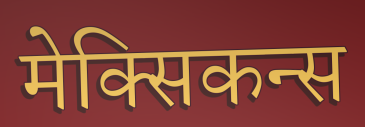
मेक्सिकन्स